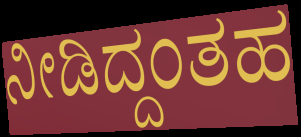
ನೀಡಿದ್ದಂತಹ